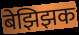
बेझिझक